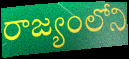
రాజ్యంలోని